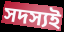
সদস্যই